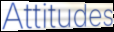
Attitudes